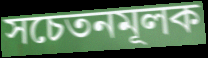
সচেতনমূলক